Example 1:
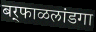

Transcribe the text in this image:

बर्फाळलांडगा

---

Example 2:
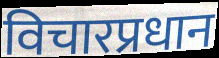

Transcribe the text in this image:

विचारप्रधान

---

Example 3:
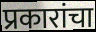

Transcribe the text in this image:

प्रकारांचा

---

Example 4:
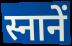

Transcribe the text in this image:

स्नानें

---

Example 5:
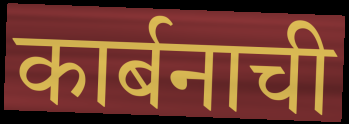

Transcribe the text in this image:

कार्बनाची